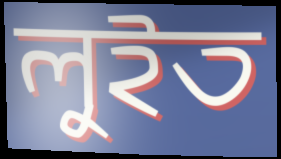
লুইত